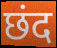
छंद